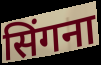
सिंगना